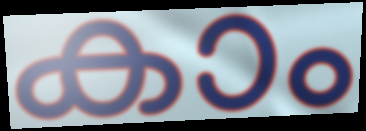
കാം